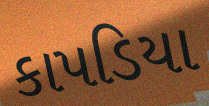
કાપડિયા